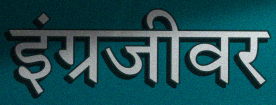
इंग्रजीवर